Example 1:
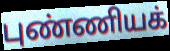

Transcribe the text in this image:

புண்ணியக்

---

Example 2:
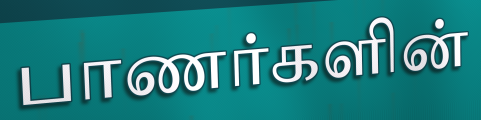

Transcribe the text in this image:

பாணர்களின்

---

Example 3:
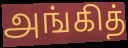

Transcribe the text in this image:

அங்கித்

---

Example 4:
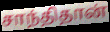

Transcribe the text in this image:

சாந்திதான்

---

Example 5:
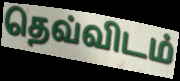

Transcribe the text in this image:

தெவ்விடம்